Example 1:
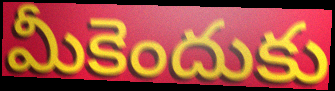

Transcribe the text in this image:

మీకెందుకు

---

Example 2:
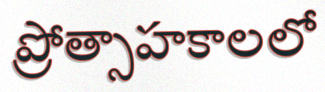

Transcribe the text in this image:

ప్రోత్సాహకాలలో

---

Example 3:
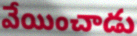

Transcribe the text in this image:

వేయించాడు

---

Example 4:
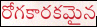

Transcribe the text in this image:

రోగకారకమైన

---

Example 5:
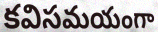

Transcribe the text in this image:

కవిసమయంగా